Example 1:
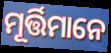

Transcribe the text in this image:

ମୂର୍ତ୍ତିମାନେ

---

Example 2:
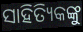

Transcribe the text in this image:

ସାହିତ୍ୟିକଙ୍କୁ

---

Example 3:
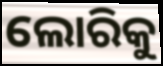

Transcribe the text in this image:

ଲୋରିକୁ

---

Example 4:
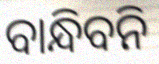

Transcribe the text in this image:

ବାନ୍ଧିବନି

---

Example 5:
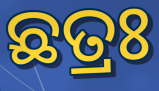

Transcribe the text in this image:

ଛତ୍ରଃ